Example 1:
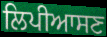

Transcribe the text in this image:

ਲਿਪੀਆਸਣ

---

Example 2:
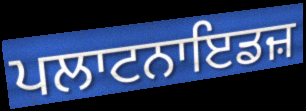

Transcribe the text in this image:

ਪਲਾਟਨਾਇਡਜ਼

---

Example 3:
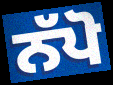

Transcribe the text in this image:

ਨੱਪੋ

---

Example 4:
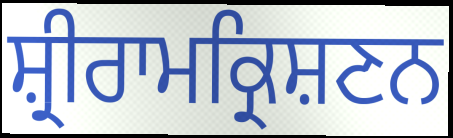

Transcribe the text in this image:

ਸ਼੍ਰੀਰਾਮਕ੍ਰਿਸ਼ਣਨ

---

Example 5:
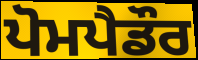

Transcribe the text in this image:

ਪੋਮਪੈਡੌਰ